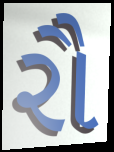
રૌ